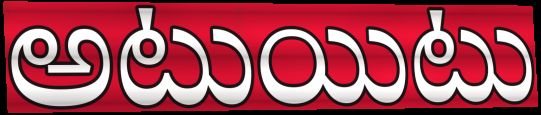
అటుయిటు